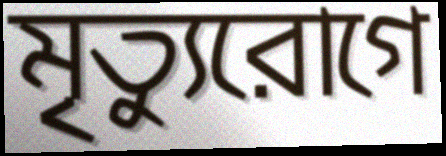
মৃত্যুরোগে